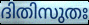
ദിതിസുതഃ